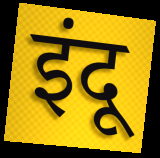
इंदू